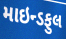
માઇન્ડફુલ